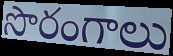
సొరంగాలు